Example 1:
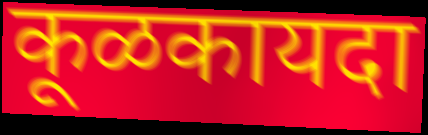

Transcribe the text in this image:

कूळकायदा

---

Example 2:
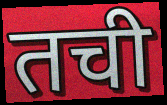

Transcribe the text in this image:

तची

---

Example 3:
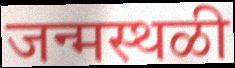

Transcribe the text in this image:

जन्मस्थळी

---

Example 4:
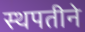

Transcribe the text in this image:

स्थपतीने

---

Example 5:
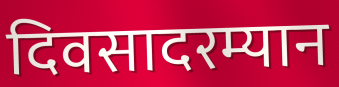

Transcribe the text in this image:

दिवसादरम्यान